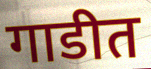
गाडीत